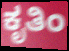
ಕೃತಿಂ